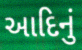
આદિનું